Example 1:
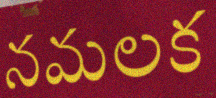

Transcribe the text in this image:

నమలక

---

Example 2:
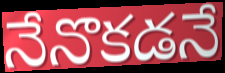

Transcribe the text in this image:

నేనొకడనే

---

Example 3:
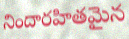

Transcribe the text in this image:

నిందారహితమైన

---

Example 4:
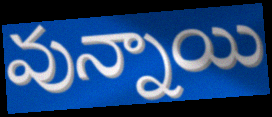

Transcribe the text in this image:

వున్నాయి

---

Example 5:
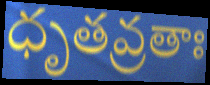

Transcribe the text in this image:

ధృతవ్రతాః